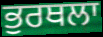
ਭੁਰਥਲਾ